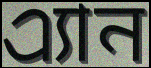
এ্যান